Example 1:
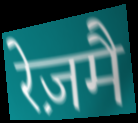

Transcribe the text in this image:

रेज़मै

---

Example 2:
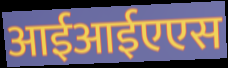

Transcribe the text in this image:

आईआईएएस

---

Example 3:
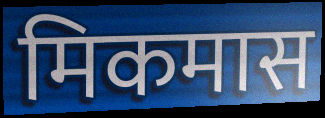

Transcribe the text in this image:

मिकमास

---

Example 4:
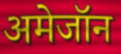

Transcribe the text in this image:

अमेजॉन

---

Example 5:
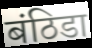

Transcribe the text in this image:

बंठिडा